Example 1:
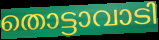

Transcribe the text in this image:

തൊട്ടാവാടി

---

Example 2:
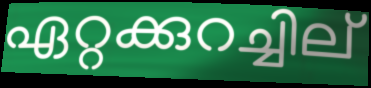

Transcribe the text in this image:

ഏറ്റക്കുറച്ചില്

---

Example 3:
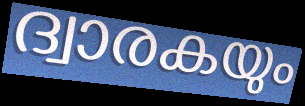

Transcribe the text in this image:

ദ്വാരകയും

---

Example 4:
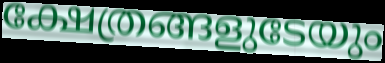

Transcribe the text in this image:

ക്ഷേത്രങ്ങളുടേയും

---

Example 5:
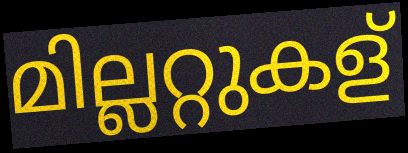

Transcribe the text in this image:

മില്ലറ്റുകള്